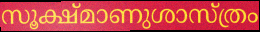
സൂക്ഷ്മാണുശാസ്ത്രം